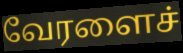
வேரளைச்